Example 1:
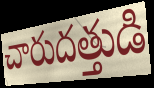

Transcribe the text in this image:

చారుదత్తుడి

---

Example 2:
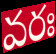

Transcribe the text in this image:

వరః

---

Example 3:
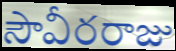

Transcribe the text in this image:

సౌవీరరాజు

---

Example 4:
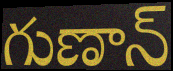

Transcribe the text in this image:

గుణాన్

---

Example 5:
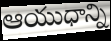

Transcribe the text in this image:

ఆయుధాన్ని